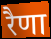
रैणा